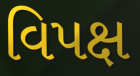
વિપક્ષ